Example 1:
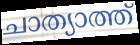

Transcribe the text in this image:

ചാത്യാത്ത്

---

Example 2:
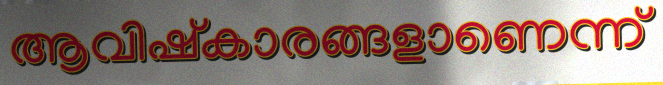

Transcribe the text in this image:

ആവിഷ്കാരങ്ങളാണെന്ന്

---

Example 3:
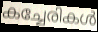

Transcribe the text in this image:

കച്ചേരികൾ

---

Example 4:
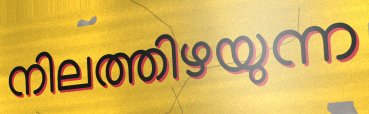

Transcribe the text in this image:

നിലത്തിഴയുന്ന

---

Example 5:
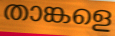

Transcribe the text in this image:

താങ്കളെ